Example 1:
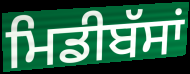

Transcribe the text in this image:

ਮਿਡੀਬੱਸਾਂ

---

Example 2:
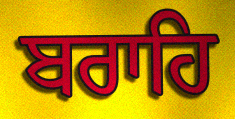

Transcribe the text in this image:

ਬਰਾਹਿ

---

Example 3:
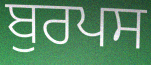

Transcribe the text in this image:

ਬੁਰਪਸ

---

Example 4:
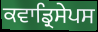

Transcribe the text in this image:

ਕਵਾਡ੍ਰਿਸੇਪਸ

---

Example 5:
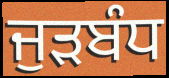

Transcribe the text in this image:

ਜੁੜਬੰਧ